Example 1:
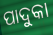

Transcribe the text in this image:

ପାଦୁକା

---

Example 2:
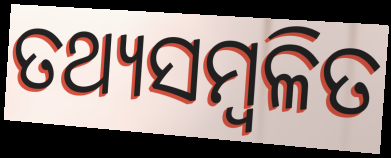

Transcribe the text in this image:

ତଥ୍ୟସମ୍ବଳିତ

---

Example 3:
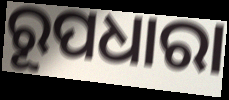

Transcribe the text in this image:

ରୂପଧାରା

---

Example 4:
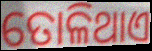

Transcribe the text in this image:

ତୋଳିଥାଏ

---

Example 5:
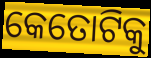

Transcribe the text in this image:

କେତୋଟିକୁ